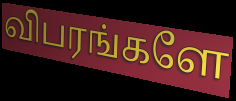
விபரங்களே